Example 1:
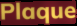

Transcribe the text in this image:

Plaque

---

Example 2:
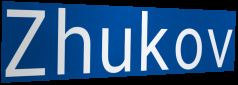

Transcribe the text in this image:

Zhukov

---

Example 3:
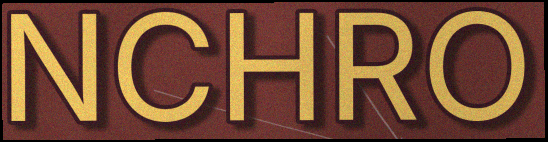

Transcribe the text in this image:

NCHRO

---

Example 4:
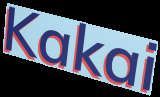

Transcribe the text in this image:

Kakai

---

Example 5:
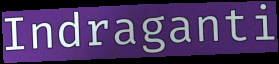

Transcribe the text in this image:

Indraganti